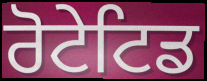
ਰੋਟੇਟਿਡ